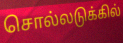
சொல்லடுக்கில்